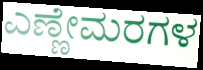
ಎಣ್ಣೇಮರಗಳ